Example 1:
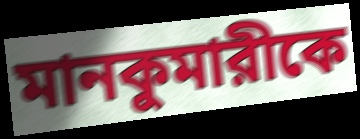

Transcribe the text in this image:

মানকুমারীকে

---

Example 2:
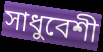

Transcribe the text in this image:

সাধুবেশী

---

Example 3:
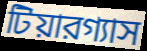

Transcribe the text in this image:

টিয়ারগ্যাস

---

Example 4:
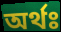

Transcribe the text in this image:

অর্থঃ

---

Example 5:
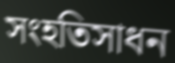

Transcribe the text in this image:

সংহতিসাধন